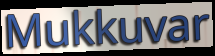
Mukkuvar